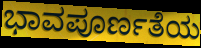
ಭಾವಪೂರ್ಣತೆಯ